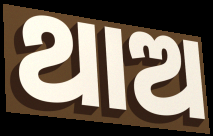
ଥାଅ